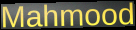
Mahmood